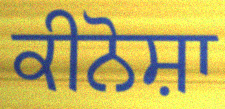
ਕੀਨੋਸ਼ਾ